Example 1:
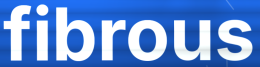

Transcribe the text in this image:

fibrous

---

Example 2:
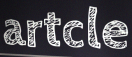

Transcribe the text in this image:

artcle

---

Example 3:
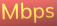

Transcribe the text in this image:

Mbps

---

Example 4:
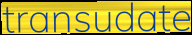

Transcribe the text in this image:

transudate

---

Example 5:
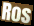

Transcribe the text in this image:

Ros